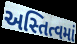
અસ્તિત્વમાં